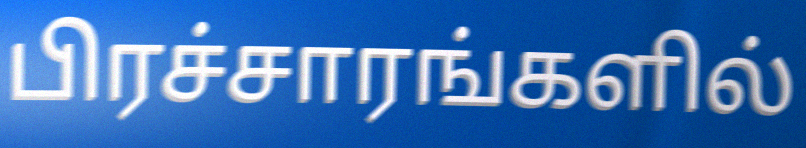
பிரச்சாரங்களில்